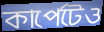
কার্পেটেও